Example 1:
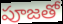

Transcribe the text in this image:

పూజతో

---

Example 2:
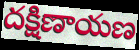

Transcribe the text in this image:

దక్షిణాయణ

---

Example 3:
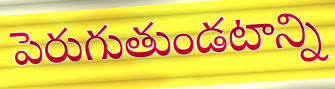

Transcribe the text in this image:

పెరుగుతుండటాన్ని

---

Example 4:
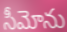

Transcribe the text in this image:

సీమోను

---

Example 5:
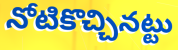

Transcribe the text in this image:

నోటికొచ్చినట్టు